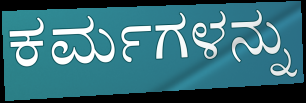
ಕರ್ಮಗಳನ್ನು